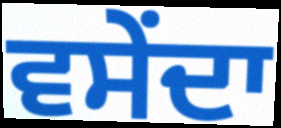
ਵਸੇਂਦਾ